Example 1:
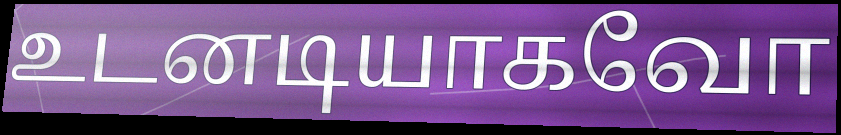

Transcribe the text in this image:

உடனடியாகவோ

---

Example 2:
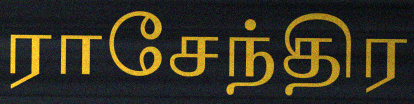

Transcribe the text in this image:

ராசேந்திர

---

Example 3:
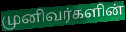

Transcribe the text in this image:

முனிவர்களின்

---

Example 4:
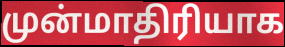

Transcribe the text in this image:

முன்மாதிரியாக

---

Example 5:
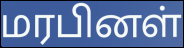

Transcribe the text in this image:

மரபினள்